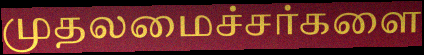
முதலமைச்சர்களை